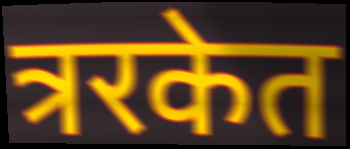
त्ररकेत